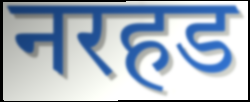
नरहड